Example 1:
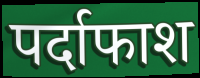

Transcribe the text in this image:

पर्दाफाश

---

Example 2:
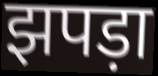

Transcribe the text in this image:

झपड़ा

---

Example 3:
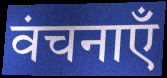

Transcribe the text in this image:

वंचनाएँ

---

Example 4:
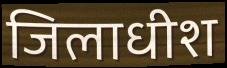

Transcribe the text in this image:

जिलाधीश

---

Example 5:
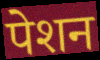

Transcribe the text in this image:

पेशन